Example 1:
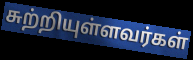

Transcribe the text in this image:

சுற்றியுள்ளவர்கள்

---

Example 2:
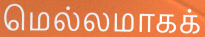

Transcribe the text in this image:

மெல்லமாகக்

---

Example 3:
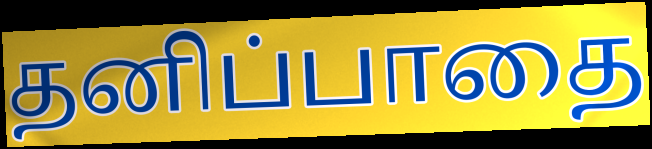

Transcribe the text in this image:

தனிப்பாதை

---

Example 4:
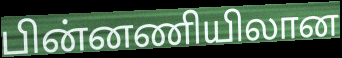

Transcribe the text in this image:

பின்னணியிலான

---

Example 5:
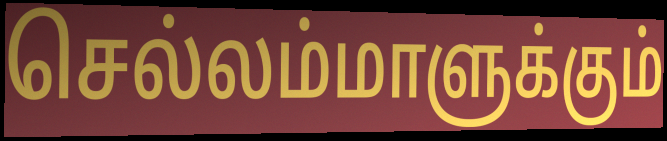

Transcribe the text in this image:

செல்லம்மாளுக்கும்